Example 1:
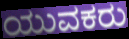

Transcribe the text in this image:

ಯುವಕರು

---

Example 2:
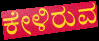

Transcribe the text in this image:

ಕೇಳಿರುವ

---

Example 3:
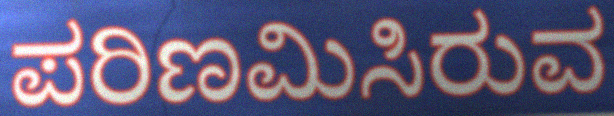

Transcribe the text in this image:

ಪರಿಣಮಿಸಿರುವ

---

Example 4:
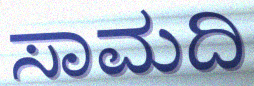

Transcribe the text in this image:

ಸಾಮದಿ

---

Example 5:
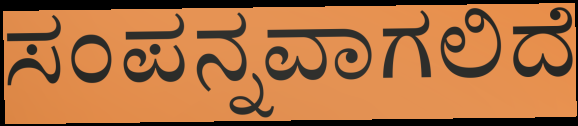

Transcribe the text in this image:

ಸಂಪನ್ನವಾಗಲಿದೆ